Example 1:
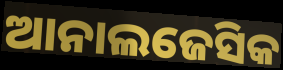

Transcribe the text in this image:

ଆନାଲଜେସିକ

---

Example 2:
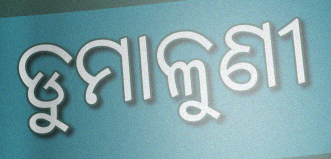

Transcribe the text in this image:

ଡୁମାଳୁଣୀ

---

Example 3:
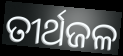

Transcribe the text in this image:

ତୀର୍ଥଜଳ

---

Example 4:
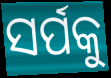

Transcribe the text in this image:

ସର୍ପକୁ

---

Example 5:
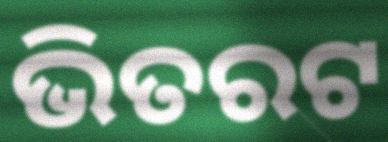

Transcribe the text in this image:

ଭିତରଟ